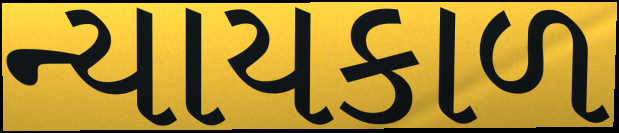
ન્યાયકાળ